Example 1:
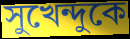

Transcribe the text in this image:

সুখেন্দুকে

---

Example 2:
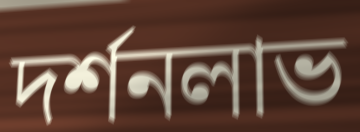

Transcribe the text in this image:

দর্শনলাভ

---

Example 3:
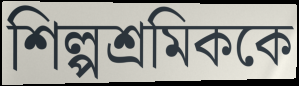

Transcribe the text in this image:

শিল্পশ্রমিককে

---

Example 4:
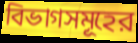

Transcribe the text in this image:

বিভাগসমূহের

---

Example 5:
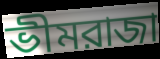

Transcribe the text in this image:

ভীমরাজা